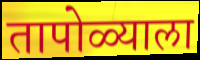
तापोळ्याला